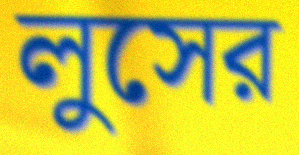
লুসের